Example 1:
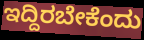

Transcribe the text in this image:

ಇದ್ದಿರಬೇಕೆಂದು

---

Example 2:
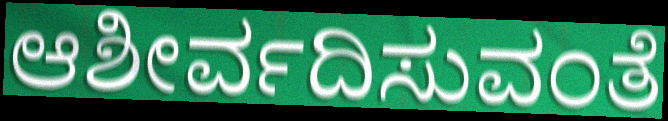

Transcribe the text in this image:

ಆಶೀರ್ವದಿಸುವಂತೆ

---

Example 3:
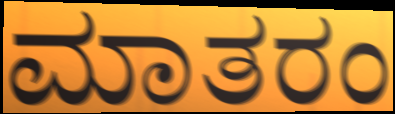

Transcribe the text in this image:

ಮಾತರಂ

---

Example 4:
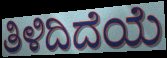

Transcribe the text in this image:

ತಿಳಿದಿದೆಯೆ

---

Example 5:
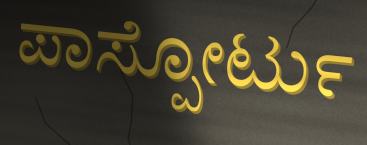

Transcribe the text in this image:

ಪಾಸ್ಪೋರ್ಟು